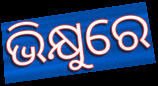
ଭିକ୍ଷୁରେ